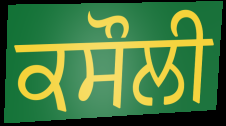
ਕਸੌਲੀ